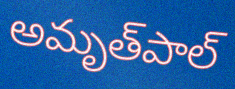
అమృత్‌పాల్